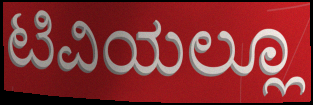
ಟಿವಿಯಲ್ಲೂ